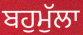
ਬਹੁਮੁੱਲਾ